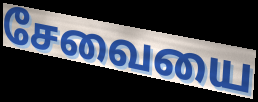
சேவையை